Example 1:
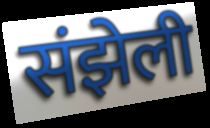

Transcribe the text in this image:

संझेली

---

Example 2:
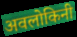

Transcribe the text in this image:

अवलोकिनी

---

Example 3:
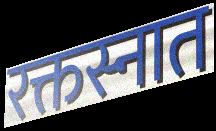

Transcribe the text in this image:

रक्तस्नात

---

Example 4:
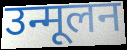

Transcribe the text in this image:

उन्मूलन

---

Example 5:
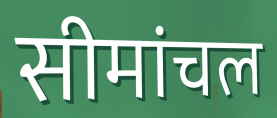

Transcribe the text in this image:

सीमांचल